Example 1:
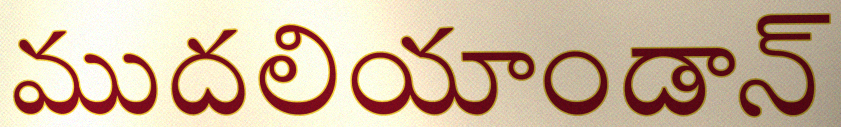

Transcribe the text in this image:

ముదలియాండాన్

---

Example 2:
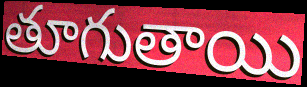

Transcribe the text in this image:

తూగుతాయి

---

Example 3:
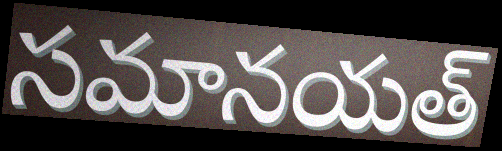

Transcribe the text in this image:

సమానయత్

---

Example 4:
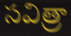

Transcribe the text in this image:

సవిత్రా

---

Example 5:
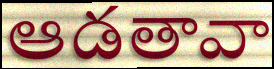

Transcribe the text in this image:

ఆడతావా